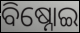
ବିଷ୍ନୋଇ